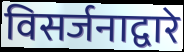
विसर्जनाद्वारे